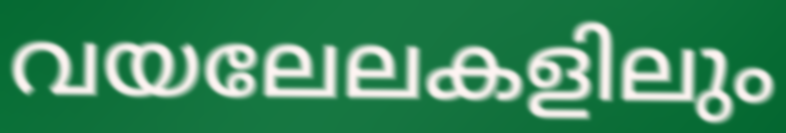
വയലേലകളിലും